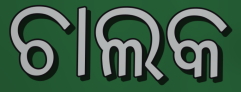
ଚାଲକ